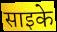
साइके